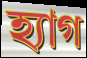
হ্যাগ